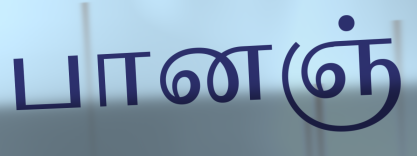
பானஞ்